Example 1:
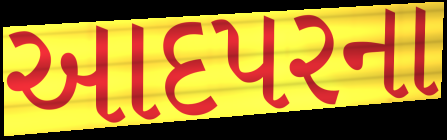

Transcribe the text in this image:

આદપરના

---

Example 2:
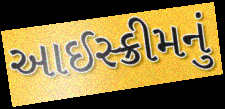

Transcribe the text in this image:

આઈસ્ક્રીમનું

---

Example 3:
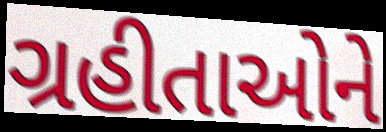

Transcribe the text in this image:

ગ્રહીતાઓને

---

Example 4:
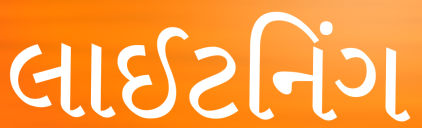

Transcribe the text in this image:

લાઈટનિંગ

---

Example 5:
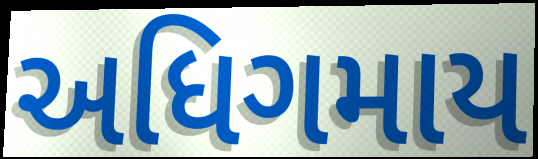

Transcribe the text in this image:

અધિગમાય